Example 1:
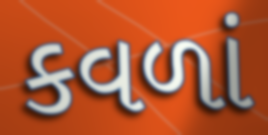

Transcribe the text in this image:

કવળાં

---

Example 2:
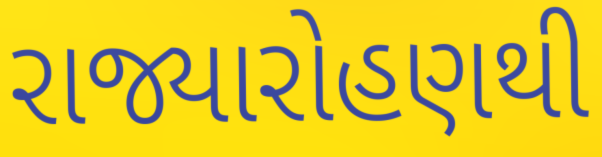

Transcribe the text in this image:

રાજ્યારોહણથી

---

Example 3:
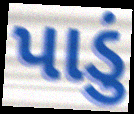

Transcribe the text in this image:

પાડું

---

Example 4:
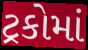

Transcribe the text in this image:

ટ્રકોમાં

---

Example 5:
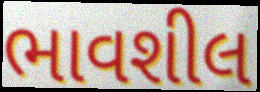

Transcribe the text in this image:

ભાવશીલ